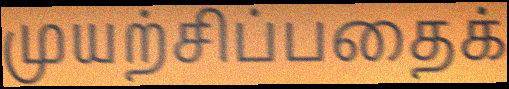
முயற்சிப்பதைக்